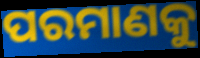
ପରମାଣକୁ